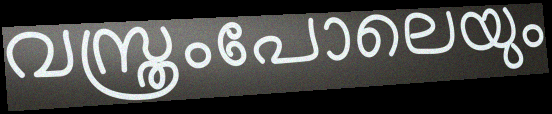
വസ്ത്രംപോലെയും